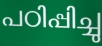
പഠിപ്പിച്ചു